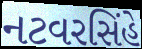
નટવરસિંહે